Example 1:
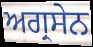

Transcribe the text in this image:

ਅਗ੍ਰਸੇਨ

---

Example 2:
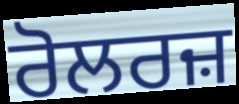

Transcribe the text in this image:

ਰੋਲਰਜ਼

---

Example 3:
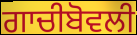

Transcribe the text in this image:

ਗਾਚੀਬੋਵਲੀ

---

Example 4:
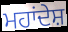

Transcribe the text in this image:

ਮਹਾਂਦੇਸ਼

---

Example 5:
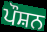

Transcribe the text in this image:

ਪੌਸ਼ਨ